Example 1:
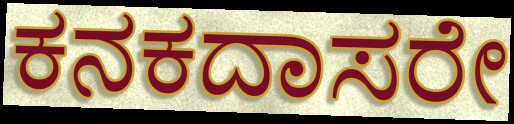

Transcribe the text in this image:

ಕನಕದಾಸರೇ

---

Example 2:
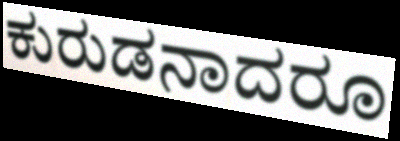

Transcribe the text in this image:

ಕುರುಡನಾದರೂ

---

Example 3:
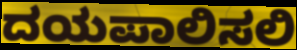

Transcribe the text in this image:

ದಯಪಾಲಿಸಲಿ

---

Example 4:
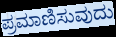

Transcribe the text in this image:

ಪ್ರಮಾಣಿಸುವುದು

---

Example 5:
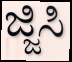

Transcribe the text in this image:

ಜ್ಜಿಸಿ